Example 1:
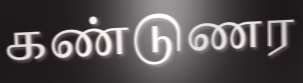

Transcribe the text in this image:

கண்டுணர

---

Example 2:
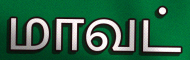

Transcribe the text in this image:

மாவட்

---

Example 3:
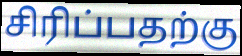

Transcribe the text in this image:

சிரிப்பதற்கு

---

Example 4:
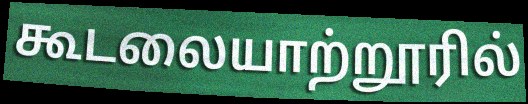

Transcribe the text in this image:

கூடலையாற்றூரில்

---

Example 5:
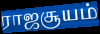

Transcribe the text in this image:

ராஜசூயம்